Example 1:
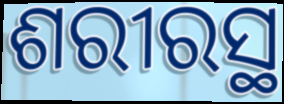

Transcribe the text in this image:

ଶରୀରସ୍ଥ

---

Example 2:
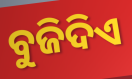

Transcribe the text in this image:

ବୁଜିଦିଏ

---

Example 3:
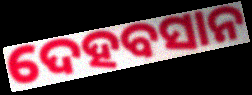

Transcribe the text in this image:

ଦେହବସାନ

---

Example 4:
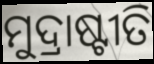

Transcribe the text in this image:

ମୁଦ୍ରାଷ୍ଟୀତି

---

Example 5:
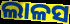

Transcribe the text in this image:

ଲାଳସ